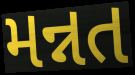
મન્નત